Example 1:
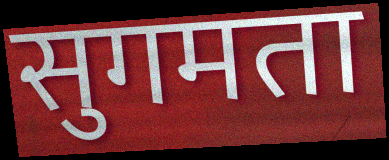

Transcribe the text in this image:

सुगमता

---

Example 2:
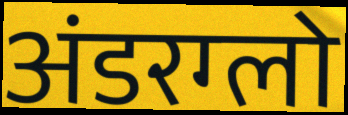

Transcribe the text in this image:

अंडरग्लो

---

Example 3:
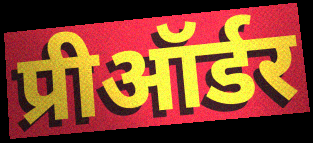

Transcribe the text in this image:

प्रीऑर्डर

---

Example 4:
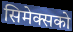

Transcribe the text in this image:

सिमेक्सको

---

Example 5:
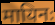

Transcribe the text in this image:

मायिनः